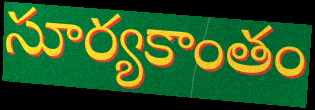
సూర్యకాంతం